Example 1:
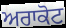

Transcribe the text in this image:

ਅਰਾਕੋਟ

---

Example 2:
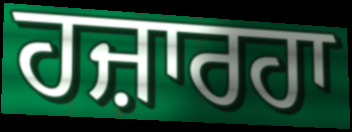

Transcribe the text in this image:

ਹਜ਼ਾਰਹਾ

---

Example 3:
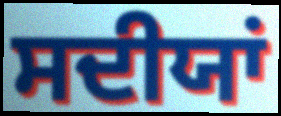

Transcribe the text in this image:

ਸਦੀਯਾਂ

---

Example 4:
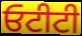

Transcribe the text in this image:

ਓਟੀਟੀ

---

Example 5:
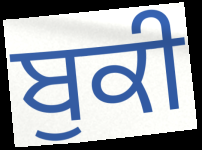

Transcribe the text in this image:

ਬੁਕੀ